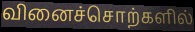
வினைச்சொற்களில்